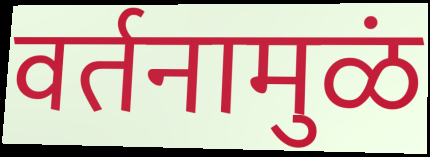
वर्तनामुळं